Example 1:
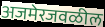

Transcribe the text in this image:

अजमेरजवळील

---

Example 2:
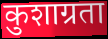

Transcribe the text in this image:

कुशाग्रता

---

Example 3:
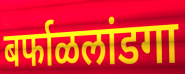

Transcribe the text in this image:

बर्फाळलांडगा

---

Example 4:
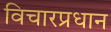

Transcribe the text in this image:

विचारप्रधान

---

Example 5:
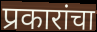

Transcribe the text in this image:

प्रकारांचा